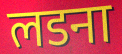
लडना